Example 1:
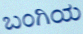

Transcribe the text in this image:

ಬಂಗಿಯ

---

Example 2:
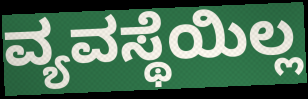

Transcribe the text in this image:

ವ್ಯವಸ್ಥೆಯಿಲ್ಲ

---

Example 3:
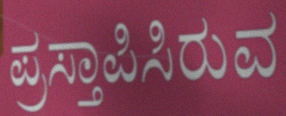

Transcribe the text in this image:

ಪ್ರಸ್ತಾಪಿಸಿರುವ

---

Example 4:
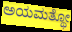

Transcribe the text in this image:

ಅಯಮತ್ಥೋ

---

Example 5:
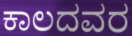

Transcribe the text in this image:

ಕಾಲದವರ